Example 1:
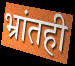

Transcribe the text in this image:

भ्रांतही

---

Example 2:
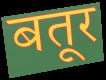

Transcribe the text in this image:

बतूर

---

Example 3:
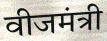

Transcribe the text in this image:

वीजमंत्री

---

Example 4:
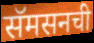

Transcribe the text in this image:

सॅमसनची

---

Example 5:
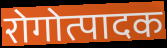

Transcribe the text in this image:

रोगोत्पादक